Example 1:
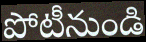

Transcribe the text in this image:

పోటీనుండి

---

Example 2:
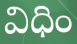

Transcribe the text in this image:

విధిం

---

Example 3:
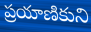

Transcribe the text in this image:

ప్రయాణికుని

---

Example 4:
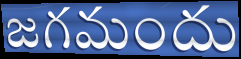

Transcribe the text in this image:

జగమందు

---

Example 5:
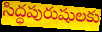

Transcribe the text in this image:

సిద్ధపురుషులకు